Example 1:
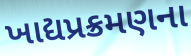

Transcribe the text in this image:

ખાદ્યપ્રક્રમણના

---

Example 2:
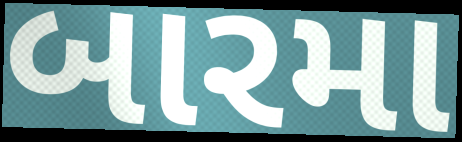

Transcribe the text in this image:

બારમા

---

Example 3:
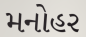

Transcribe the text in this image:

મનોહર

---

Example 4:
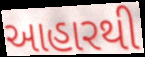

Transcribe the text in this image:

આહારથી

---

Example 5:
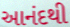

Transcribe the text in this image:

આનંદથી